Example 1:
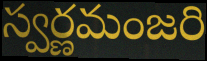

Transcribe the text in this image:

స్వర్ణమంజరి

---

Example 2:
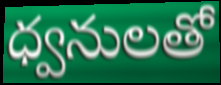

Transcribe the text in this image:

ధ్వనులతో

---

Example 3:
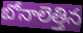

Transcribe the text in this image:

బోనాలెత్తిన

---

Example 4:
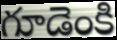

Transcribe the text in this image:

గూడెంకి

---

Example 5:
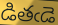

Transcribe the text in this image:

డితఁడె